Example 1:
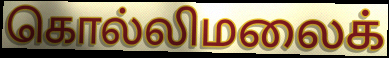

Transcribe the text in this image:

கொல்லிமலைக்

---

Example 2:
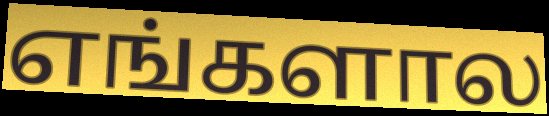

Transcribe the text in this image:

எங்களால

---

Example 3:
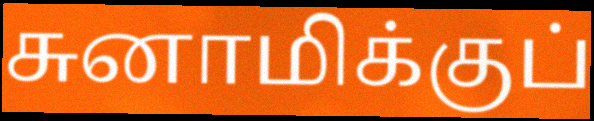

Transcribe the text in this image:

சுனாமிக்குப்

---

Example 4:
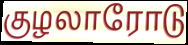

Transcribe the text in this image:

குழலாரோடு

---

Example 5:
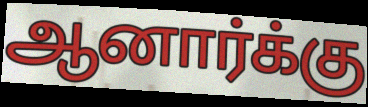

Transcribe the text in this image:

ஆனார்க்கு